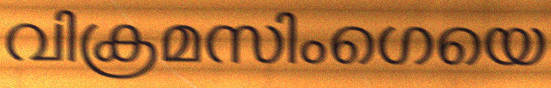
വിക്രമസിംഗെയെ